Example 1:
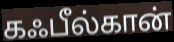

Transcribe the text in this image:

கஃபீல்கான்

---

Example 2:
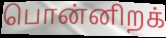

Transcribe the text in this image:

பொன்னிறக்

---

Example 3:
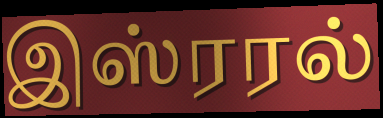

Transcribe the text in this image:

இஸ்ரரல்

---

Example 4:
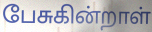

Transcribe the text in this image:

பேசுகின்றாள்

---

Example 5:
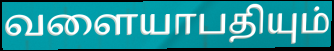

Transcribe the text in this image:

வளையாபதியும்